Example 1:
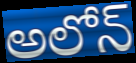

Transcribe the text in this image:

అలోన్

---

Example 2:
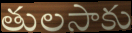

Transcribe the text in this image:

తులసాకు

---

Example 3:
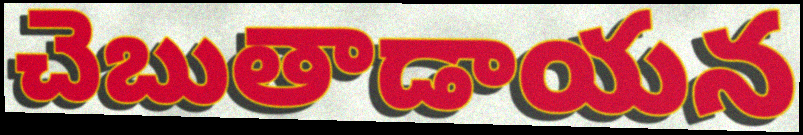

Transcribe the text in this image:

చెబుతాడాయన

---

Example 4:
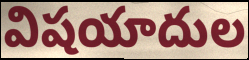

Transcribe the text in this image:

విషయాదుల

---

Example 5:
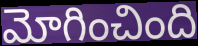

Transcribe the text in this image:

మోగించింది